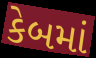
કેબમાં